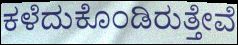
ಕಳೆದುಕೊಂಡಿರುತ್ತೇವೆ